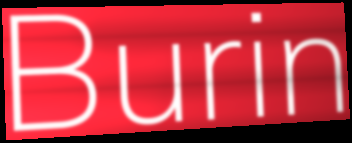
Burin